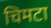
चिमटा